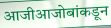
आजीआजोबांकडून